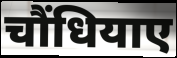
चौंधियाए